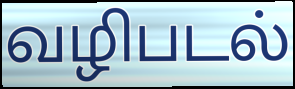
வழிபடல்